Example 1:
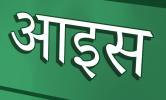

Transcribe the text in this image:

आइस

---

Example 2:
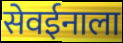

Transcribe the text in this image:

सेवईनाला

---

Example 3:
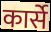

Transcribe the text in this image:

कार्से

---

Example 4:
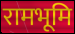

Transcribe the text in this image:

रामभूमि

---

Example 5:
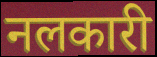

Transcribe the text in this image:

नलकारी